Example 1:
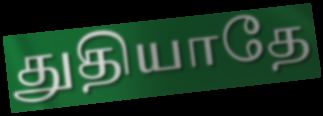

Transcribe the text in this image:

துதியாதே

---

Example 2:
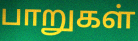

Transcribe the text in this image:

பாறுகள்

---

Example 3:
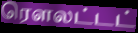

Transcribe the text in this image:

ரௌலட்டட்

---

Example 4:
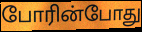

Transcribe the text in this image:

போரின்போது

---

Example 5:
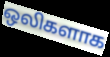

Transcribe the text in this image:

ஒலிகளாக